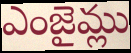
ఎంజైమ్లు